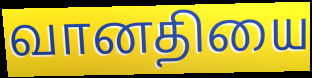
வானதியை